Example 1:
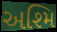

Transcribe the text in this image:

અશ્મિ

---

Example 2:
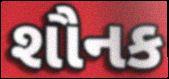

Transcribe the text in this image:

શૌનક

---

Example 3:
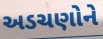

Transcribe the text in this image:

અડચણોને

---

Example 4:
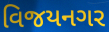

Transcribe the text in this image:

વિજયનગર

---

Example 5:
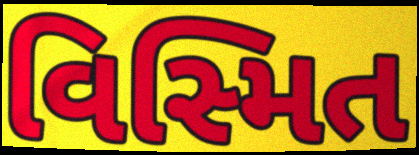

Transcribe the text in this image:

વિસ્મિત